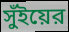
সুঁইয়ের